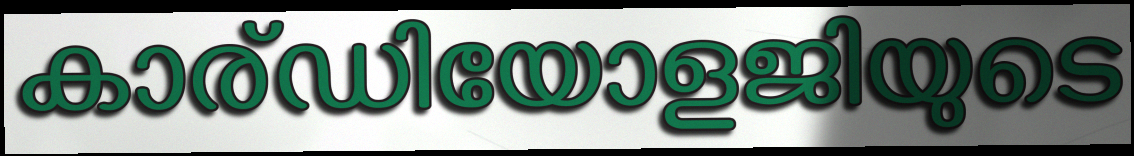
കാര്ഡിയോളജിയുടെ